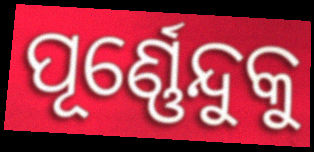
ପୂର୍ଣ୍ଣେନ୍ଦୁକୁ